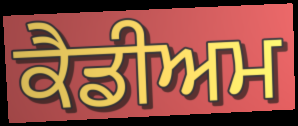
ਕੈਡੀਅਮ